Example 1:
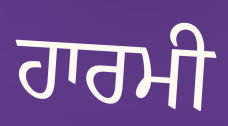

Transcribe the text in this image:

ਹਾਰਮੀ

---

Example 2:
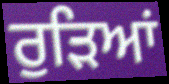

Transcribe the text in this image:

ਰੁੜਿਆਂ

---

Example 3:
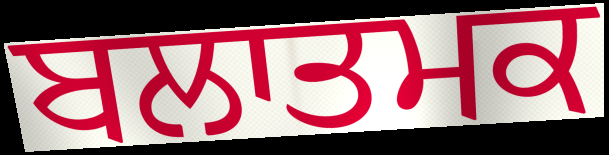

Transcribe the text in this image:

ਬਲਾਤਮਕ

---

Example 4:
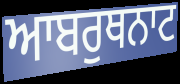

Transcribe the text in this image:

ਆਬਰੁਥਨਾਟ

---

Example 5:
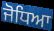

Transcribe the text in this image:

ਜੋਧਿਆ